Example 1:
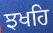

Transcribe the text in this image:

ਝਖਹਿ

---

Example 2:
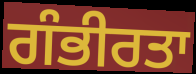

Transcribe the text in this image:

ਗੰਭੀਰਤਾ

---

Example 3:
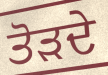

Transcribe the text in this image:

ਤੋੜਦੇ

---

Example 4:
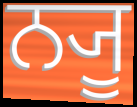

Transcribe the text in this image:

ਨ੍ਯੂ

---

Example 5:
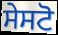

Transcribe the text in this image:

ਸੇਸਟੋ